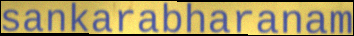
sankarabharanam